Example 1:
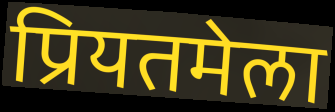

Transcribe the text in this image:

प्रियतमेला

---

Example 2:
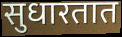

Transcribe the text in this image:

सुधारतात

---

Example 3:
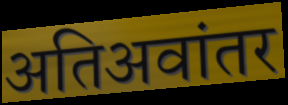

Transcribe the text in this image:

अतिअवांतर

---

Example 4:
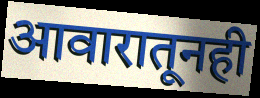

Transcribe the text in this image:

आवारातूनही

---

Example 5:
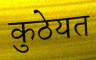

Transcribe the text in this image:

कुठेयत